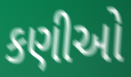
કણીઓ